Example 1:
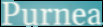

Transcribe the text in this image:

Purnea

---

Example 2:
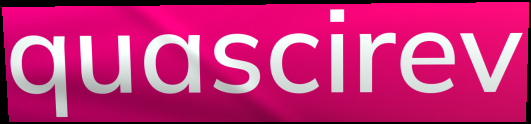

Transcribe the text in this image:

quascirev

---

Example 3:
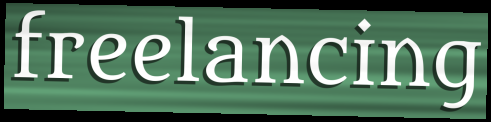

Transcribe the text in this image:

freelancing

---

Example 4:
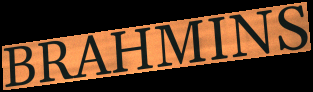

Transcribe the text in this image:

BRAHMINS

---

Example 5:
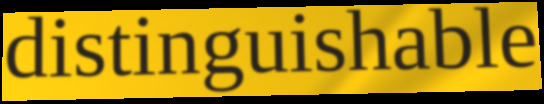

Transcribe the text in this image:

distinguishable